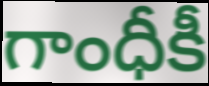
గాంధీకీ